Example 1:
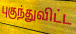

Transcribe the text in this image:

புகுந்துவிட்ட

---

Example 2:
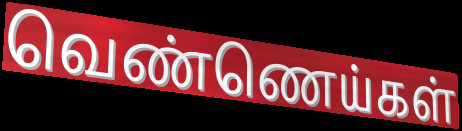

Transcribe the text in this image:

வெண்ணெய்கள்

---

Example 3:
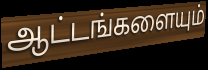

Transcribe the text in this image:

ஆட்டங்களையும்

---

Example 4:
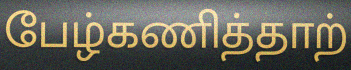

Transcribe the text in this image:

பேழ்கணித்தாற்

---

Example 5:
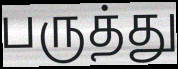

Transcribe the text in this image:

பருத்து